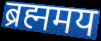
ब्रह्ममय